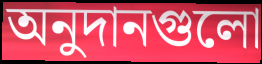
অনুদানগুলো